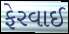
ફેરવાઈ